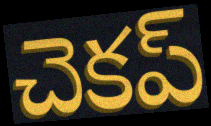
చెకప్